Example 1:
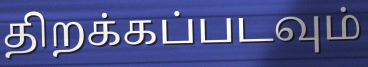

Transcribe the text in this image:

திறக்கப்படவும்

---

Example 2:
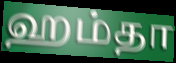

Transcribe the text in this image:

ஹம்தா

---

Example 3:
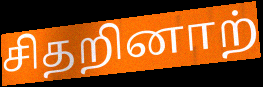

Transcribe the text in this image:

சிதறினாற்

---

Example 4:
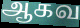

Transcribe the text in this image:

ஆகவ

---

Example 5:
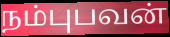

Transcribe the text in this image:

நம்புபவன்